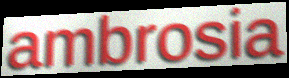
ambrosia